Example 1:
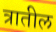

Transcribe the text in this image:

त्रातील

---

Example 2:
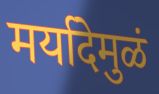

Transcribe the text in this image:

मर्यादेमुळं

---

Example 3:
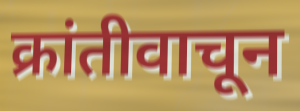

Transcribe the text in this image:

क्रांतीवाचून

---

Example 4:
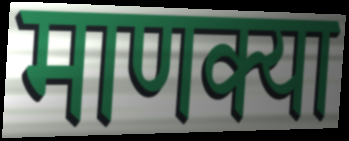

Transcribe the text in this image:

माणक्या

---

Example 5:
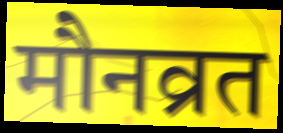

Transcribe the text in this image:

मौनव्रत